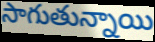
సాగుతున్నాయి